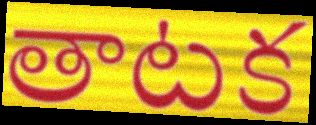
తాటక